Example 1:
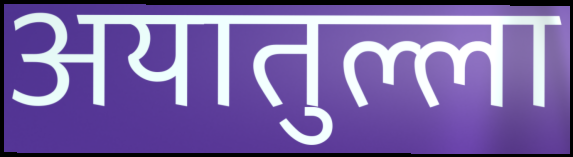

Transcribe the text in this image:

अयातुल्‍ला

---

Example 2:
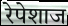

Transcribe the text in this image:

रेपेशाज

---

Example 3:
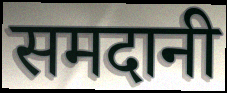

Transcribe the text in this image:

समदानी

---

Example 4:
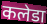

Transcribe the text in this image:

कलेडा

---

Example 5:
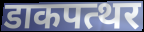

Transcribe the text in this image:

डाकपत्थर